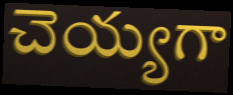
చెయ్యగా